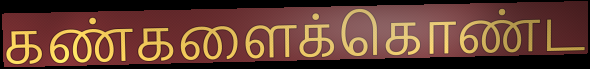
கண்களைக்கொண்ட